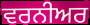
ਵਰਨੀਅਰ